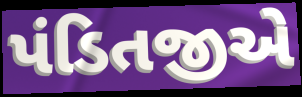
પંડિતજીએ